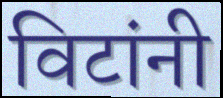
विटांनी